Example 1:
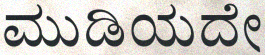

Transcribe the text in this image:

ಮುಡಿಯದೇ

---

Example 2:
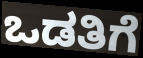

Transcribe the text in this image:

ಒಡತಿಗೆ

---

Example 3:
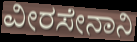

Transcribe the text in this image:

ವೀರಸೇನಾನಿ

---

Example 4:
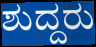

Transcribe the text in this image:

ಶುದ್ದರು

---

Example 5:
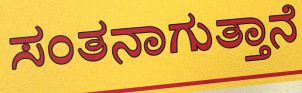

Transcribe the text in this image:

ಸಂತನಾಗುತ್ತಾನೆ